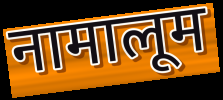
नामालूम